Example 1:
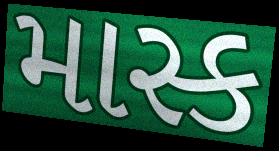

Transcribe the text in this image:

માસ્ક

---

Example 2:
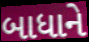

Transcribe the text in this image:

બાધાને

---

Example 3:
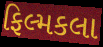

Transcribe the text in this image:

ફિલ્મકલા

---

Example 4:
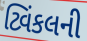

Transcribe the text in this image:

ટ્વિંકલની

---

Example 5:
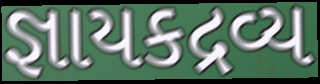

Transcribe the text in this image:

જ્ઞાયકદ્રવ્ય